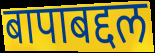
बापाबद्दल